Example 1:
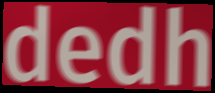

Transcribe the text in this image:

dedh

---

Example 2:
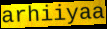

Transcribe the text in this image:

arhiiyaa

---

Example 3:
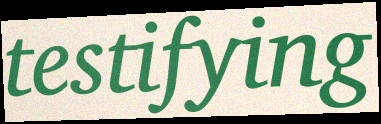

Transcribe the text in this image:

testifying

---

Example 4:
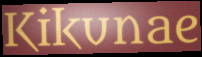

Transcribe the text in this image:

Kikunae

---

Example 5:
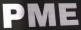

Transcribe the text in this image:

PME